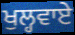
ਖੁਲ੍ਹਵਾਏ